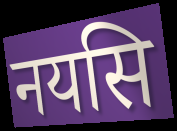
नयसि